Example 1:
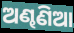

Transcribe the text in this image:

ଅଣ୍ଢଣିଆ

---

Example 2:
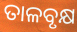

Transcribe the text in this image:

ତାଳବୃକ୍ଷ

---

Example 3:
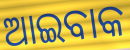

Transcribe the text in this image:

ଆଇବାକ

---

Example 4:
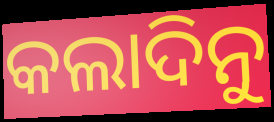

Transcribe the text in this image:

କଲାଦିନୁ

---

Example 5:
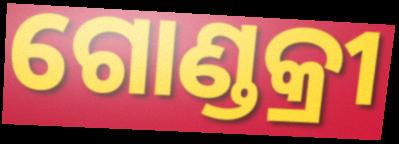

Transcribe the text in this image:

ଗୋଣ୍ଡକ୍ରୀ